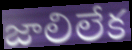
జాలిలేక